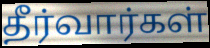
தீர்வார்கள்